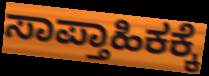
ಸಾಪ್ತಾಹಿಕಕ್ಕೆ